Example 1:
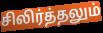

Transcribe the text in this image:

சிலிர்த்தலும்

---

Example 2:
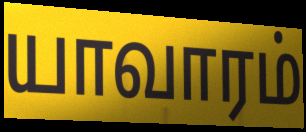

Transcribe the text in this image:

யாவாரம்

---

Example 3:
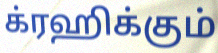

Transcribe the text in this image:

க்ரஹிக்கும்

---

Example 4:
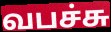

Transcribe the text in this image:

வபச்சு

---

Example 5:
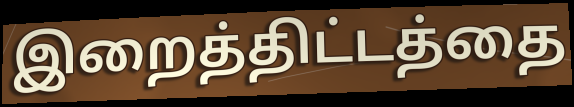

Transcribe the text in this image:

இறைத்திட்டத்தை